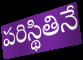
పరిస్థితినే